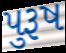
પુરૂષ